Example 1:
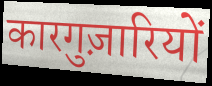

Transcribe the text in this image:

कारगुज़ारियों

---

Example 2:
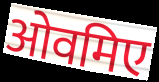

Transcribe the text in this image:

ओवमिए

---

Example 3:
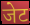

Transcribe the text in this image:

जेट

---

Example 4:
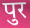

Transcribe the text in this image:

पुर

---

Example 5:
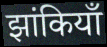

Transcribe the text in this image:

झांकियाँ